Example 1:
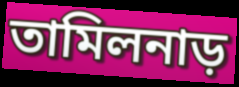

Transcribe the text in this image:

তামিলনাড়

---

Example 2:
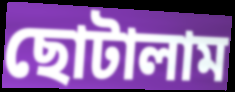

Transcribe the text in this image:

ছোটালাম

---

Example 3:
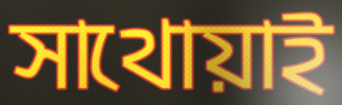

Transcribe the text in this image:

সাথোয়াই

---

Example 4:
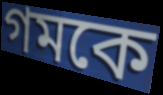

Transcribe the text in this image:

গমকে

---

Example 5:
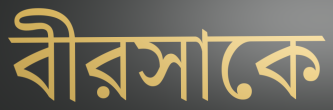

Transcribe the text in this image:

বীরসাকে